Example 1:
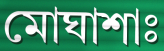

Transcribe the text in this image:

মোঘাশাঃ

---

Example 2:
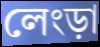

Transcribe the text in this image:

লেংড়া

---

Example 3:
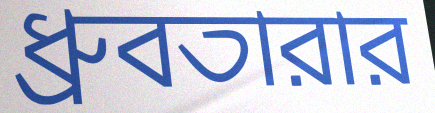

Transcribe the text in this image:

ধ্রুবতারার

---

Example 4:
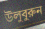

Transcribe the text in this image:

উলুবুরুন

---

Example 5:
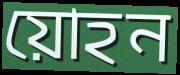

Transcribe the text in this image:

য়োহন